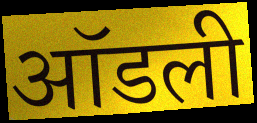
ऑडली